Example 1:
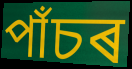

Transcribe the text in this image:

পাঁচৰ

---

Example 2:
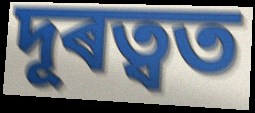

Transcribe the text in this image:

দূৰত্বত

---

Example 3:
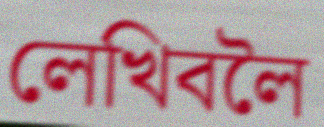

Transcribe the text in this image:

লেখিবলৈ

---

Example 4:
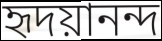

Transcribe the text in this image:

হৃদয়ানন্দ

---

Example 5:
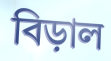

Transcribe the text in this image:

বিড়াল